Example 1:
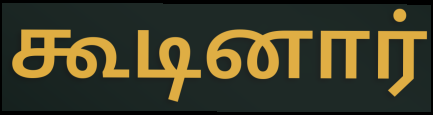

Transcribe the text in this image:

கூடினார்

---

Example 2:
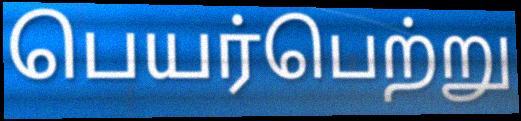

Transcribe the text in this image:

பெயர்பெற்று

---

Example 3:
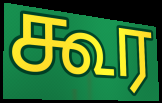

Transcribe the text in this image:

கூர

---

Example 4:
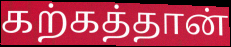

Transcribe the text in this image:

கற்கத்தான்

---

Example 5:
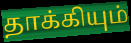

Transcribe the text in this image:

தாக்கியும்